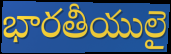
భారతీయులై